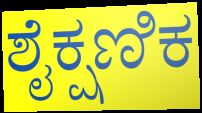
ಶೈಕ್ಷಣಿಕ